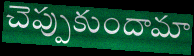
చెప్పుకుందామా